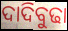
ଦାଦିବୁଢା